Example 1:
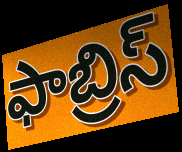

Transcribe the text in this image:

ఫాబ్రిస్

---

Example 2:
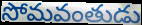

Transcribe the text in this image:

సోమవంతుడు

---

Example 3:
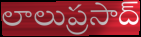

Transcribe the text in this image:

లాలుప్రసాద్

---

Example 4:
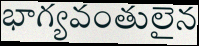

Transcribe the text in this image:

భాగ్యవంతులైన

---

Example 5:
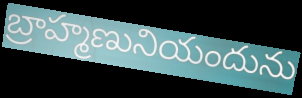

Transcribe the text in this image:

బ్రాహ్మణునియందును